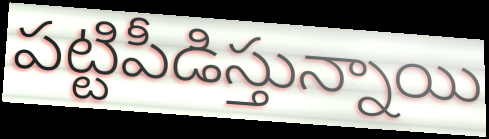
పట్టిపీడిస్తున్నాయి